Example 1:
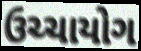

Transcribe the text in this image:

ઉચ્ચાયોગ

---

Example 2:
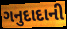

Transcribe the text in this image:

ગનુદાદાની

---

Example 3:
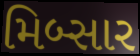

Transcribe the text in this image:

મિબ્સાર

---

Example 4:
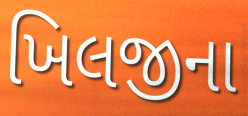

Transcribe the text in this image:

ખિલજીના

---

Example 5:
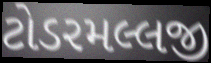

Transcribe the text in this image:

ટોડરમલ્લજી